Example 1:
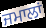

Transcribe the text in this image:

ਜਮਾਲਾਂ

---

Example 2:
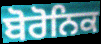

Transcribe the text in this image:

ਬੋਰੋਨਿਕ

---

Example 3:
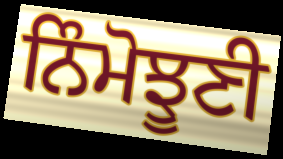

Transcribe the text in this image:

ਨਿੰਮੋਝੂਣੀ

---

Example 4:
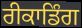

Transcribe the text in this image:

ਰੀਕਾਡਿੰਗ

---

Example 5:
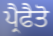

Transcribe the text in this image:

ਪ੍ਰੈਫੈਤੋ